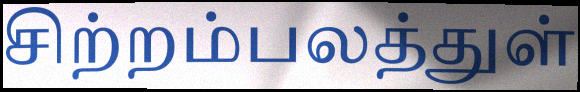
சிற்றம்பலத்துள்